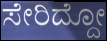
ಸೇರಿದ್ದೋ